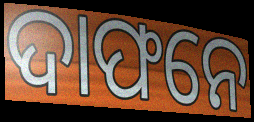
ଦାଫନେ